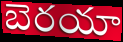
బెరయా